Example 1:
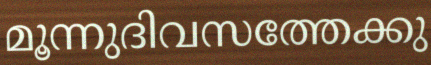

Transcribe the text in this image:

മൂന്നുദിവസത്തേക്കു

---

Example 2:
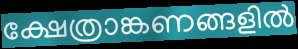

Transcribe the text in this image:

ക്ഷേത്രാങ്കണങ്ങളിൽ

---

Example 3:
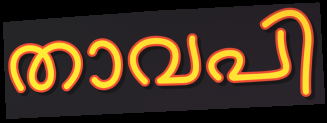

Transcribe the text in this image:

താവപി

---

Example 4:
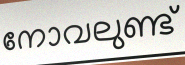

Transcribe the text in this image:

നോവലുണ്ട്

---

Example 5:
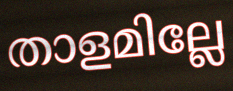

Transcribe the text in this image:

താളമില്ലേ